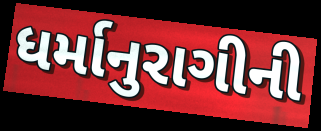
ધર્માનુરાગીની